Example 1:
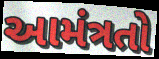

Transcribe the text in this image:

આમંત્રતો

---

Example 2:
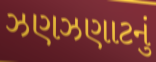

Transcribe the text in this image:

ઝણઝણાટનું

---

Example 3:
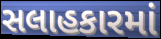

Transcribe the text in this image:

સલાહકારમાં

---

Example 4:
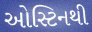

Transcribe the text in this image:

ઓસ્ટિનથી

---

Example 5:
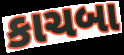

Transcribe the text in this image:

કાચબા